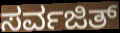
ಸರ್ವಜಿತ್